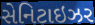
સેનિટાઇઝર